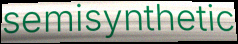
semisynthetic